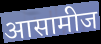
आसामीज